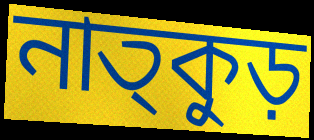
নাত্কুড়